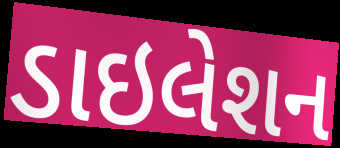
ડાઇલેશન